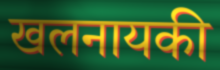
खलनायकी